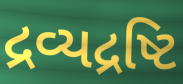
દ્રવ્યદ્રષ્ટિ